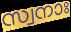
സ്വനാഃ